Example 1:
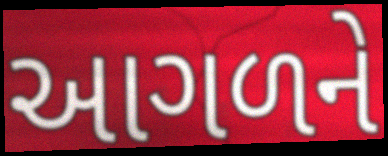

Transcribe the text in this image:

આગળને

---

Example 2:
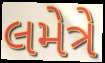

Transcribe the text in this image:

લમેત્રે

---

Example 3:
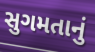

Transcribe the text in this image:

સુગમતાનું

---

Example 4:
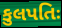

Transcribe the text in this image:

કુલપતિઃ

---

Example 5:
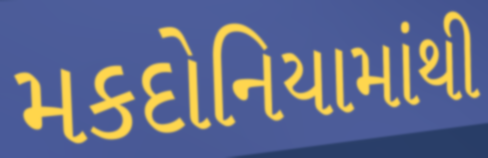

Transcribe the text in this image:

મકદોનિયામાંથી